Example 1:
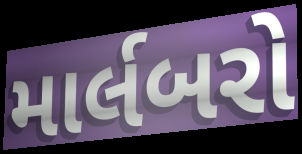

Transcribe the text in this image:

માર્લબરો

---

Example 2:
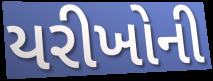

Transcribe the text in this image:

યરીખોની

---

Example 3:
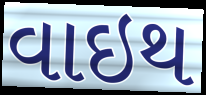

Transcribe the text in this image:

વાઇથ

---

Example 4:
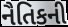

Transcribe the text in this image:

નૈતિકની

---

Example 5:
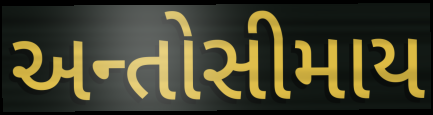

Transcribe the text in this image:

અન્તોસીમાય